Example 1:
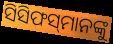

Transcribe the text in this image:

ସିସିଫସ୍‌ମାନଙ୍କୁ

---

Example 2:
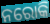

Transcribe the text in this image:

ନରୋକି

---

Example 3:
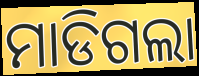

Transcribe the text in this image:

ମାଡିଗଲା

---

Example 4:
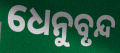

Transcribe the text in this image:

ଧେନୁବୃନ୍ଦ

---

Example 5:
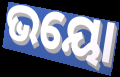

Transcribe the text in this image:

ଭୟୋ